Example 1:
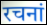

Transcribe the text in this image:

रचनां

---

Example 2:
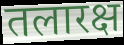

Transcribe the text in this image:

तलारक्ष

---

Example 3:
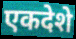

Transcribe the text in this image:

एकदेशे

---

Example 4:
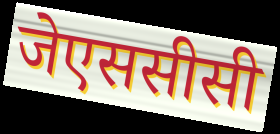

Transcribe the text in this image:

जेएससीसी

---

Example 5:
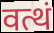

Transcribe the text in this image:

वत्थं